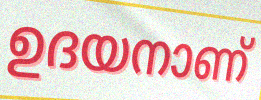
ഉദയനാണ്